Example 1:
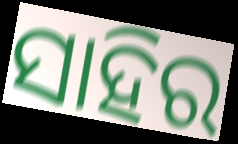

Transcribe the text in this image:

ସାହିର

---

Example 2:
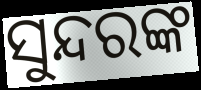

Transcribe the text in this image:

ସୁନ୍ଦରଙ୍କ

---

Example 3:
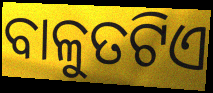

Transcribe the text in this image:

ବାଳୁତଟିଏ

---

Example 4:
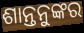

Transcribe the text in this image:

ଶାନ୍ତନୁଙ୍କର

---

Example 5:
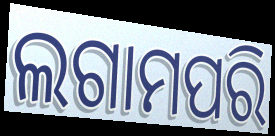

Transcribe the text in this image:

ଲଗାମପରି